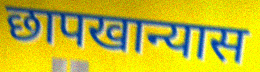
छापखान्यास